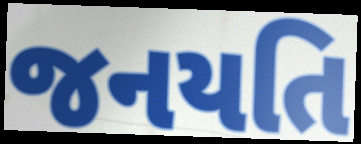
જનયતિ